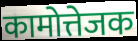
कामोत्तेजक